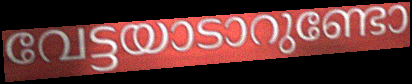
വേട്ടയാടാറുണ്ടോ